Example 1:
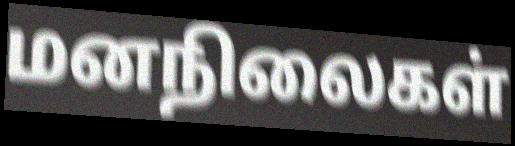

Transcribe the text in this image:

மனநிலைகள்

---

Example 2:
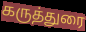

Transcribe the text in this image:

கருத்துரை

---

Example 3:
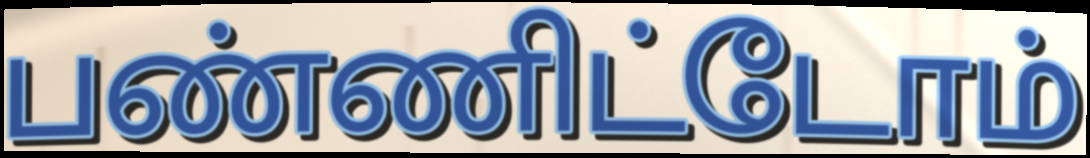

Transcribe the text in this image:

பண்ணிட்டோம்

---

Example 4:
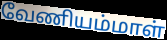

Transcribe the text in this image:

வேணியம்மாள்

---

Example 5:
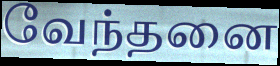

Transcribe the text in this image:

வேந்தனை